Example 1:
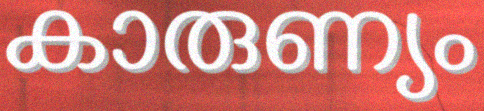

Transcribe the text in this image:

കാരുണ്യം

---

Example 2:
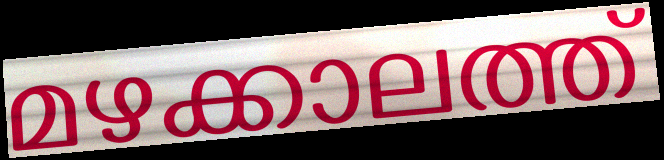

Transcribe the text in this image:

മഴക്കാലത്ത്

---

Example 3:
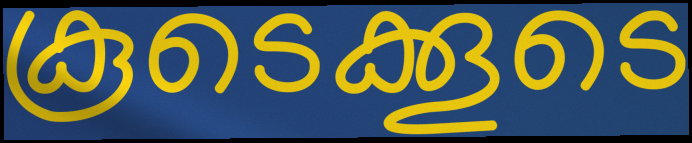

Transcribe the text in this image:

കൂടെക്കൂടെ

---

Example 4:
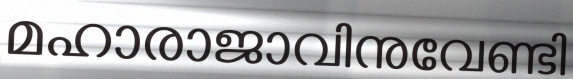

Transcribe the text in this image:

മഹാരാജാവിനുവേണ്ടി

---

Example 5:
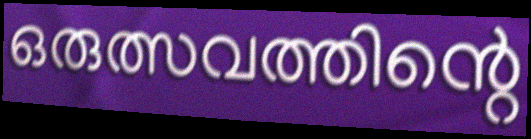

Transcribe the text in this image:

ഒരുത്സവത്തിന്റെ